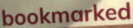
bookmarked